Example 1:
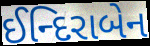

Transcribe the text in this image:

ઈન્દિરાબેન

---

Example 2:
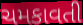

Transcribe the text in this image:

ચમકાવતી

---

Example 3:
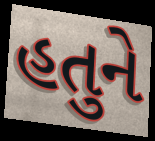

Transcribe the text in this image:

હતુને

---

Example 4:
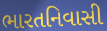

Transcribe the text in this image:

ભારતનિવાસી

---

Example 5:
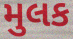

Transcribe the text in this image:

મુલક